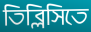
তিব্লিসিতে